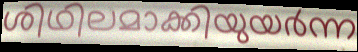
ശിഥിലമാക്കിയുയർന്ന